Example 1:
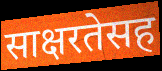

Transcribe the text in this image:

साक्षरतेसह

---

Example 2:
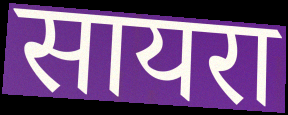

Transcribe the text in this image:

सायरा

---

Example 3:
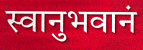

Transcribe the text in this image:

स्वानुभवानं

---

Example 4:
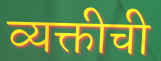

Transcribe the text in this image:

व्यक्तीची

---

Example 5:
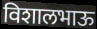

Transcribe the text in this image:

विशालभाऊ